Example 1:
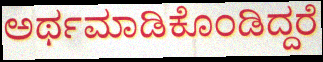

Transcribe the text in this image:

ಅರ್ಥಮಾಡಿಕೊಂಡಿದ್ದರೆ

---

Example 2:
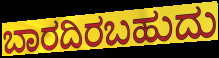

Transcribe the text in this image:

ಬಾರದಿರಬಹುದು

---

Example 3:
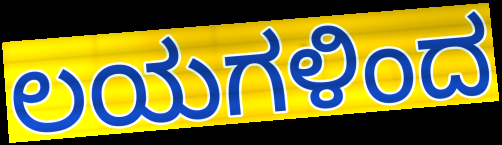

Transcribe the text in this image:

ಲಯಗಳಿಂದ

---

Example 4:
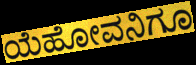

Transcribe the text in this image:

ಯೆಹೋವನಿಗೂ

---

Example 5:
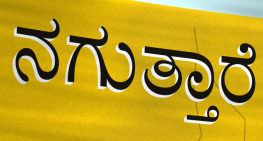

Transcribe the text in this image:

ನಗುತ್ತಾರೆ